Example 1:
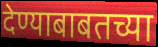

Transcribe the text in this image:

देण्याबाबतच्या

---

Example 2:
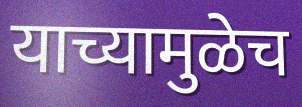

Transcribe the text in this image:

याच्यामुळेच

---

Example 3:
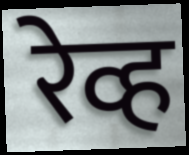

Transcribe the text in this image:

रेव्ह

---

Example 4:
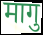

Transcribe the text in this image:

मागु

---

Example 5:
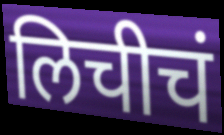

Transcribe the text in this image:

लिचीचं